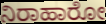
ನಿರಾಹಾರೋ